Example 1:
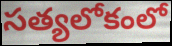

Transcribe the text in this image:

సత్యలోకంలో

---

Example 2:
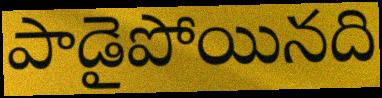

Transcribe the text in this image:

పాడైపోయినది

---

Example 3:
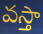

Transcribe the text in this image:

వస్తా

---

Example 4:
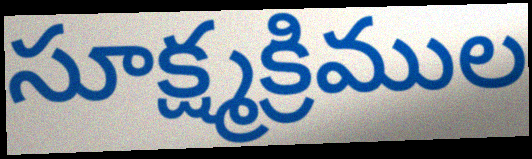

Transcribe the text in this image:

సూక్ష్మక్రిముల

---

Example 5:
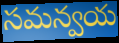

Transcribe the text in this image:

సమన్వయ